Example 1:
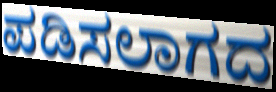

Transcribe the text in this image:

ಪಡಿಸಲಾಗದ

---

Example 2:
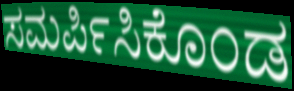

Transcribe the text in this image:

ಸಮರ್ಪಿಸಿಕೊಂಡ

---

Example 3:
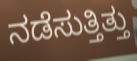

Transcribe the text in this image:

ನಡೆಸುತ್ತಿತ್ತು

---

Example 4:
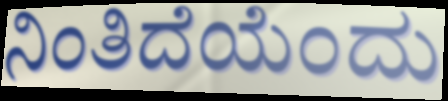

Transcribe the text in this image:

ನಿಂತಿದೆಯೆಂದು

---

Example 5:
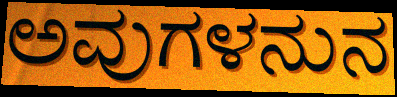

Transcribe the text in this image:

ಅವುಗಳನುನ